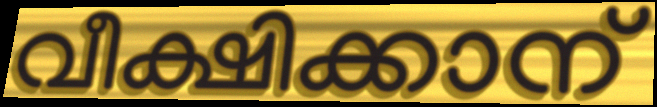
വീക്ഷിക്കാന്